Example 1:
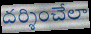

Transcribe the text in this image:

దర్శించేలా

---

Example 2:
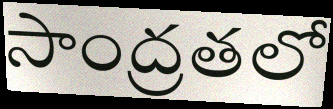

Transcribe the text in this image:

సాంద్రతలో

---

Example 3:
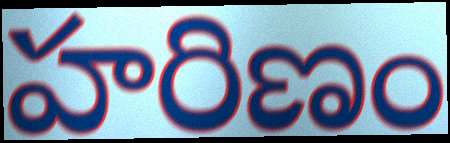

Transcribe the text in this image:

హరిణం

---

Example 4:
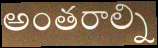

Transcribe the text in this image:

అంతరాల్ని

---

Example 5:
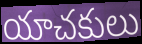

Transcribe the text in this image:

యాచకులు